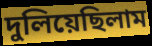
দুলিয়েছিলাম